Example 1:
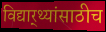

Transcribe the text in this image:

विद्यार्थ्यांसाठीच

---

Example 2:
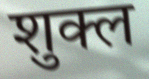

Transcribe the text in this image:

शुक्‍ल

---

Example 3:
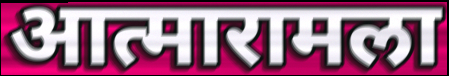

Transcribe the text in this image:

आत्मारामला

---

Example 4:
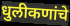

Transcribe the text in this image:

धुलीकणांचे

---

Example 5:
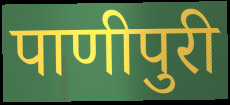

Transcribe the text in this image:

पाणीपुरी